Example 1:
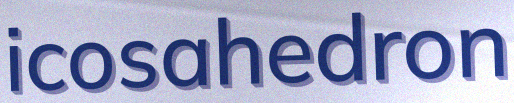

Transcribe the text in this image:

icosahedron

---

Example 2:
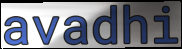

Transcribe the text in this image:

avadhi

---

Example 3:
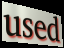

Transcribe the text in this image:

used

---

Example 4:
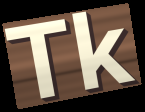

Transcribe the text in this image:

Tk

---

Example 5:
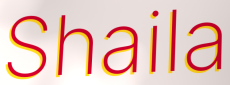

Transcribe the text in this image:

Shaila